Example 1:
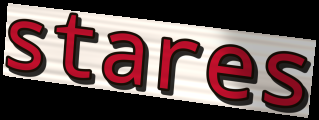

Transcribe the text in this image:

stares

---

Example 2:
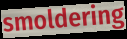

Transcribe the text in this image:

smoldering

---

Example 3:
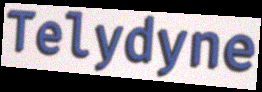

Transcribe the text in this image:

Telydyne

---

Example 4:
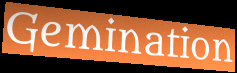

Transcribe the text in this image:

Gemination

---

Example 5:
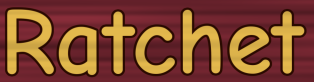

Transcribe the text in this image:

Ratchet